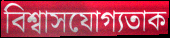
বিশ্বাসযোগ্যতাক